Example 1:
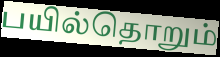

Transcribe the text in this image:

பயில்தொறும்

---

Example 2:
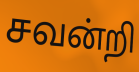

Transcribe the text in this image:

சவன்றி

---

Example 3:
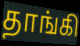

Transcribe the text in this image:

தாங்கி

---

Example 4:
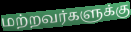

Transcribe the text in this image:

மற்றவர்களுக்கு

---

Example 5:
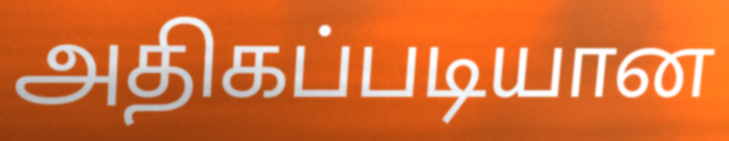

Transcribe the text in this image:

அதிகப்படியான